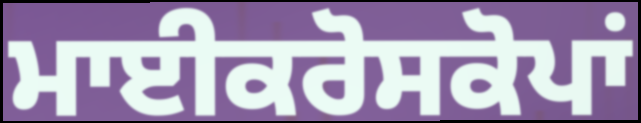
ਮਾਈਕਰੋਸਕੋਪਾਂ